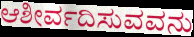
ಆಶೀರ್ವದಿಸುವವನು